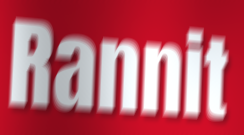
Rannit